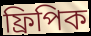
ফ্রিপিক